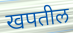
खपतील